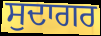
ਸੁਦਾਗਰ